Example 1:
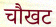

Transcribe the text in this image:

चौखट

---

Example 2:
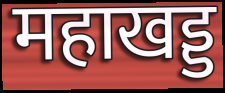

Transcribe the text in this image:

महाखड्ड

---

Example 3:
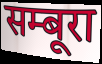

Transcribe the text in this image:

सम्बूरा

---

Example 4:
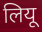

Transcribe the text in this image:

लियू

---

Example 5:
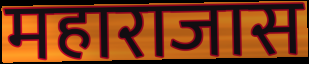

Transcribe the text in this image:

महाराजास